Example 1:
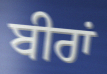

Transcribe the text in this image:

ਬੀਰਾਂ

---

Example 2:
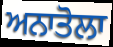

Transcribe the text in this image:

ਅਨਾਤੋਲਾ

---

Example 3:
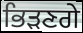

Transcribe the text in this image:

ਭਿੜਣਗੇ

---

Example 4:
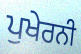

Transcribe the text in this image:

ਪੁਖੇਰਨੀ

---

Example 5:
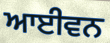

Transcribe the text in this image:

ਆਈਵਨ